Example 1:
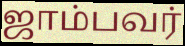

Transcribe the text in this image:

ஜாம்பவர்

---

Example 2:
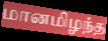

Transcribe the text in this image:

மானமிழந்த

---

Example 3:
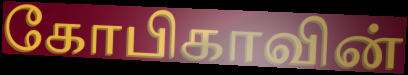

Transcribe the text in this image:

கோபிகாவின்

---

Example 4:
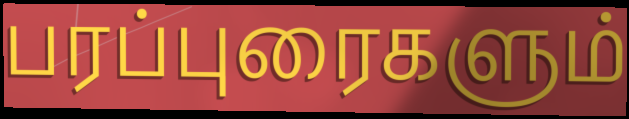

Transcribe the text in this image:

பரப்புரைகளும்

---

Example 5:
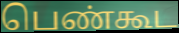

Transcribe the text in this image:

பெண்கூட